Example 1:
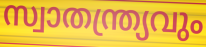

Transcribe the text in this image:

സ്വാതന്ത്ര്യവും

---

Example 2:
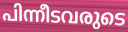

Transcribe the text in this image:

പിന്നീടവരുടെ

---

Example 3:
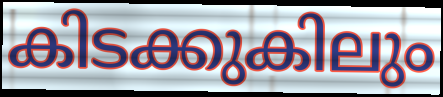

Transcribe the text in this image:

കിടക്കുകിലും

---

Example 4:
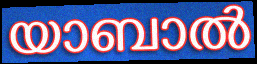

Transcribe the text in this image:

യാബാൽ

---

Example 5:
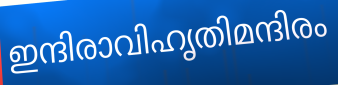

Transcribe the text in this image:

ഇന്ദിരാവിഹൃതിമന്ദിരം